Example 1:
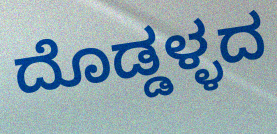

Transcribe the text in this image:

ದೊಡ್ಡಳ್ಳದ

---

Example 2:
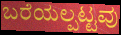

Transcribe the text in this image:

ಬರೆಯಲ್ಪಟ್ಟವು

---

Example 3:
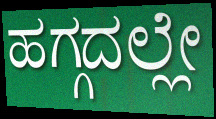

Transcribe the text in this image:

ಹಗ್ಗದಲ್ಲೇ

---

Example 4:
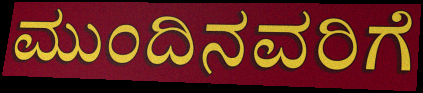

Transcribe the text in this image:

ಮುಂದಿನವರಿಗೆ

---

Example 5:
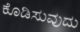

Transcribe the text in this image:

ಕೊಡಿಸುವುದು